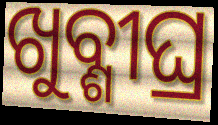
ଖୁବ୍ଶୀଘ୍ର